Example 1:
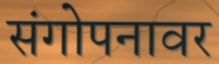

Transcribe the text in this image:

संगोपनावर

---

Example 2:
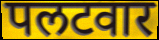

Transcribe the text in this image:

पलटवार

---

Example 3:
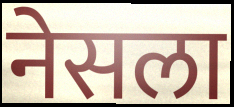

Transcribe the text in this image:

नेसला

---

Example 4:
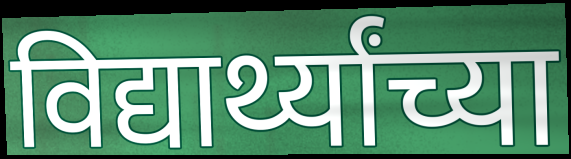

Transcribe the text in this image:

विद्यार्थ्यांच्या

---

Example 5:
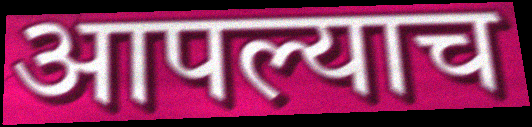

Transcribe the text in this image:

आपल्याच